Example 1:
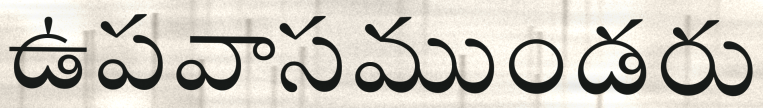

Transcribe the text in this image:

ఉపవాసముండరు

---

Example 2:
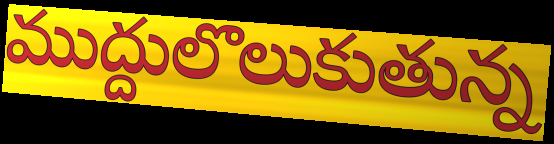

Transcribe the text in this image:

ముద్దులొలుకుతున్న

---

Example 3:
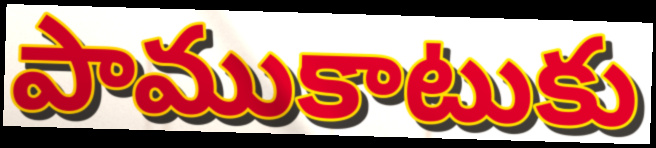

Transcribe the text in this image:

పాముకాటుకు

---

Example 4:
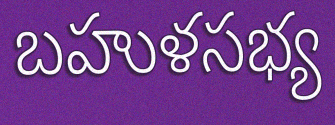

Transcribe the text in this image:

బహుళసభ్య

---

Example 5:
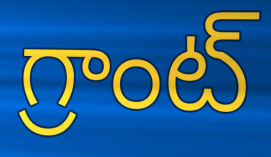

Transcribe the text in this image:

గ్రాంట్